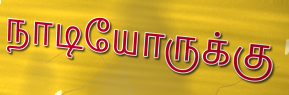
நாடியோருக்கு